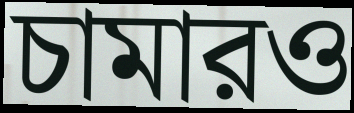
চামারও